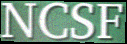
NCSF